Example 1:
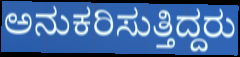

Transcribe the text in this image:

ಅನುಕರಿಸುತ್ತಿದ್ದರು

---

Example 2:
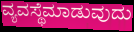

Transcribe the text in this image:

ವ್ಯವಸ್ಥೆಮಾಡುವುದು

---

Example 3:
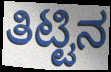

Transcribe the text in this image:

ತಿಟ್ಟಿನ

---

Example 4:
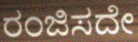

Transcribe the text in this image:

ರಂಜಿಸದೇ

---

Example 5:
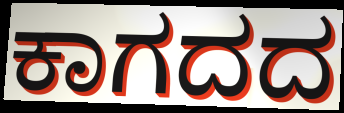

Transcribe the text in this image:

ಕಾಗದದ